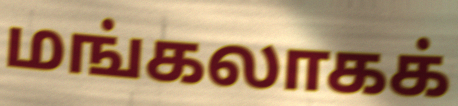
மங்கலாகக்